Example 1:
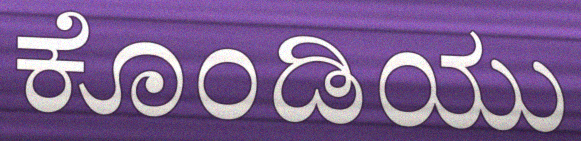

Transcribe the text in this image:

ಕೊಂಡಿಯು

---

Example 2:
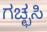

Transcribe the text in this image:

ಗಚ್ಛಸಿ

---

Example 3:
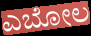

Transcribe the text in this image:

ಎಬೋಲ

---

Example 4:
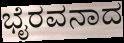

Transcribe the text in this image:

ಭೈರವನಾದ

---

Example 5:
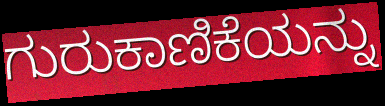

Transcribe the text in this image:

ಗುರುಕಾಣಿಕೆಯನ್ನು